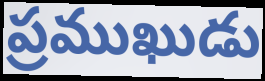
ప్రముఖుడు